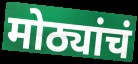
मोठ्यांचं